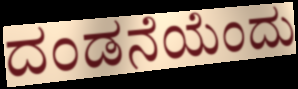
ದಂಡನೆಯೆಂದು